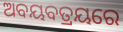
ଅବୟବତ୍ରୟରେ